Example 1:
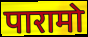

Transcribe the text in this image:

पारामो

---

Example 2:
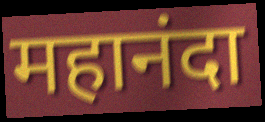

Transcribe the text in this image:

महानंदा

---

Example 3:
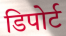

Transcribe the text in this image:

डिपोर्ट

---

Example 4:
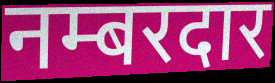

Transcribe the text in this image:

नम्बरदार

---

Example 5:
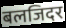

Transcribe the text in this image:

बलजिदर